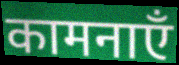
कामनाएँ